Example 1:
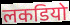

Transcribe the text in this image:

लकडियो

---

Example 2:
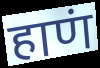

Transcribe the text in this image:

हाणं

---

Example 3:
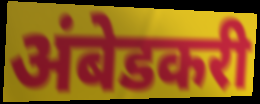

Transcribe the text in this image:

अंबेडकरी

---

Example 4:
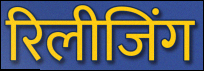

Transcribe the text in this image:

रिलीजिंग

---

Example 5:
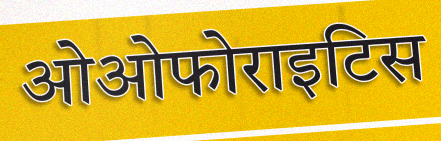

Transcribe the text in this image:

ओओफोराइटिस